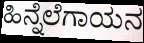
ಹಿನ್ನೆಲೆಗಾಯನ